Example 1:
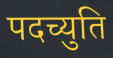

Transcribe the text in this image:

पदच्युति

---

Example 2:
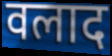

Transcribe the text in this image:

वलाद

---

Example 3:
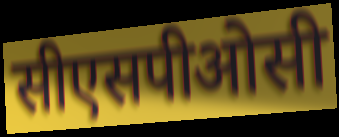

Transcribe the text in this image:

सीएसपीओसी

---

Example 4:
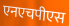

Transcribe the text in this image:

एनएचपीएस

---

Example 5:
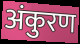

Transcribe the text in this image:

अंकुरण